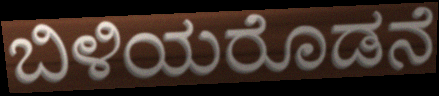
ಬಿಳಿಯರೊಡನೆ